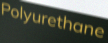
Polyurethane